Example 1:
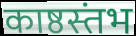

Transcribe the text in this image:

काष्ठस्तंभ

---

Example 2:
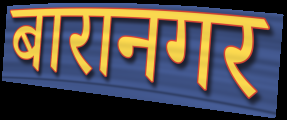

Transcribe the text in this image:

बारानगर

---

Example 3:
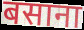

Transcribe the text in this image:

बसाना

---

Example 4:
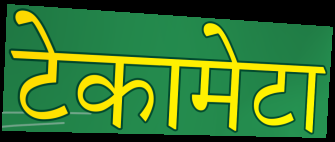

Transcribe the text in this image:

टेकामेटा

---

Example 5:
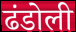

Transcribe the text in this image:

ढंडोली